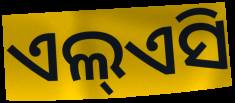
ଏଲ୍ଏସି